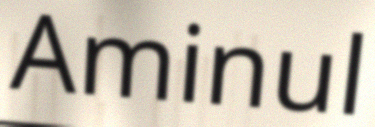
Aminul